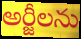
అర్జీలను